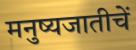
मनुष्यजातीचें